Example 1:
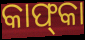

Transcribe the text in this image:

କାଫ୍‌କା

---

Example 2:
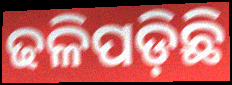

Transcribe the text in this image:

ଢଳିପଡ଼ିଛି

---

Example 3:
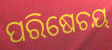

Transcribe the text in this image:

ପରିଷେଚୟ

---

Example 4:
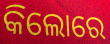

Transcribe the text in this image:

କିଲୋରେ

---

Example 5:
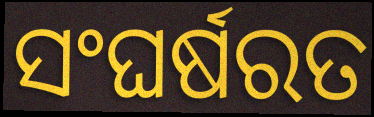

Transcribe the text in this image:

ସଂଘର୍ଷରତ